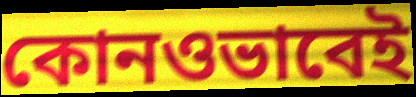
কোনওভাবেই